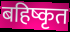
बहिष्कृत